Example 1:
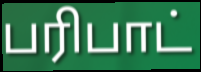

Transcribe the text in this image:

பரிபாட்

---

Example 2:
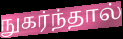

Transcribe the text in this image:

நுகர்ந்தால்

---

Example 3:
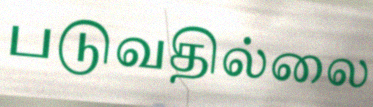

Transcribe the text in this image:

படுவதில்லை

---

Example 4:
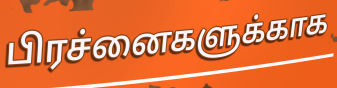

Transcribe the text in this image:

பிரச்னைகளுக்காக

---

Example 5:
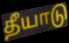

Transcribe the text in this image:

தீயாடு